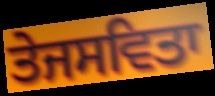
ਤੇਜਸਵਿਤਾ